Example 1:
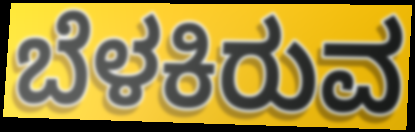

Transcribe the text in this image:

ಬೆಳಕಿರುವ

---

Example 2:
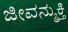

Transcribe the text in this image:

ಜೀವನ್ಮುಕ್ತಿ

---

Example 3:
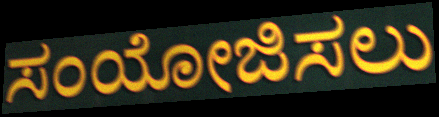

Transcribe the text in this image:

ಸಂಯೋಜಿಸಲು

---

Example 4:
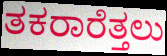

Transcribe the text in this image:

ತಕರಾರೆತ್ತಲು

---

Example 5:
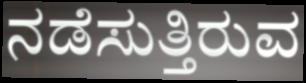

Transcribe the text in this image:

ನಡೆಸುತ್ತಿರುವ